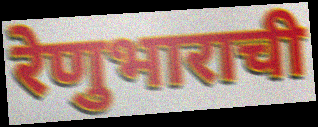
रेणुभाराची